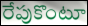
రేపుకొంటూ